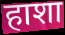
हाशा